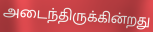
அடைந்திருக்கின்றது